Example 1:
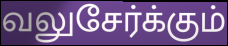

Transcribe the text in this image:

வலுசேர்க்கும்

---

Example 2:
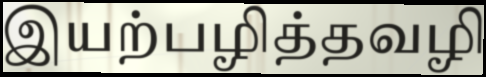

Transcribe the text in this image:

இயற்பழித்தவழி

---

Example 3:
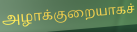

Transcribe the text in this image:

அழாக்குறையாகச்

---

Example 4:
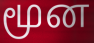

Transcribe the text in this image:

மூன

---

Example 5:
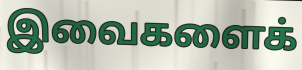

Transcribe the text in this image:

இவைகளைக்